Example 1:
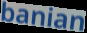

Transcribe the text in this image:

banian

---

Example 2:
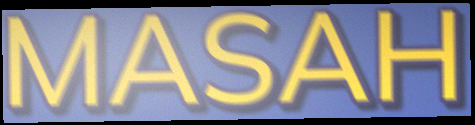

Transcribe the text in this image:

MASAH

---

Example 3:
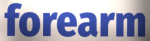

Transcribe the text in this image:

forearm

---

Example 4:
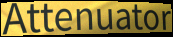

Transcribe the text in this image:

Attenuator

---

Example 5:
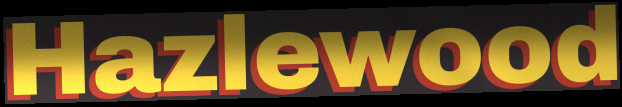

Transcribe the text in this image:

Hazlewood